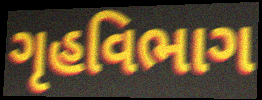
ગૃહવિભાગ